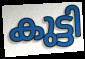
കുട്ടി